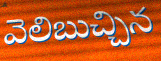
వెలిబుచ్చిన